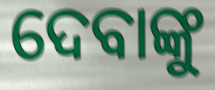
ଦେବାଙ୍କୁ